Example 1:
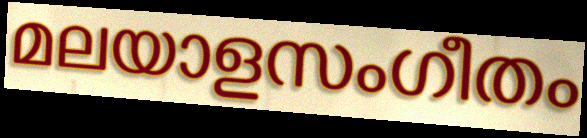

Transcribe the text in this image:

മലയാളസംഗീതം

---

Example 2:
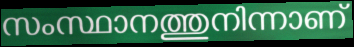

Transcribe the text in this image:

സംസ്ഥാനത്തുനിന്നാണ്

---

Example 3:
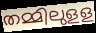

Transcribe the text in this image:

തമ്മിലുളള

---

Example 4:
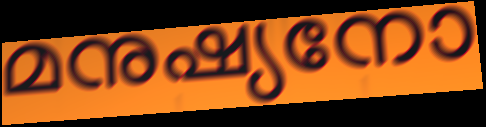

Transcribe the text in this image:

മനുഷ്യനോ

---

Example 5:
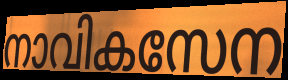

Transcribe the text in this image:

നാവികസേന